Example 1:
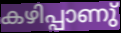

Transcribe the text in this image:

കഴിപ്പാണു്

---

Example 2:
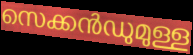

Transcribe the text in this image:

സെക്കൻഡുമുള്ള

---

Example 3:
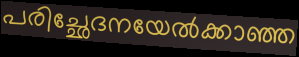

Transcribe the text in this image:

പരിച്ഛേദനയേൽക്കാഞ്ഞ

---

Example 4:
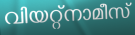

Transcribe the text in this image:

വിയറ്റ്നാമീസ്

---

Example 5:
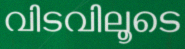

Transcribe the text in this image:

വിടവിലൂടെ